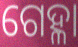
ଗେହ୍ଳା